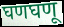
घणघणू